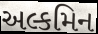
અલ્કમિન